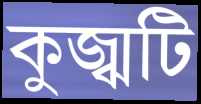
কুজ্ঝটি